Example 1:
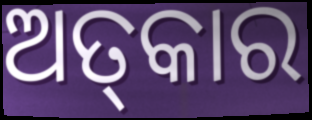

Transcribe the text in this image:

ଅତ୍‌କାର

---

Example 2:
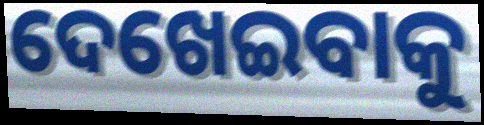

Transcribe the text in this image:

ଦେଖେଇବାକୁ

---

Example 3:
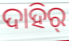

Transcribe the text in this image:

ଦାହିର୍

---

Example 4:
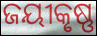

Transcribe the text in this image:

ଜୟୀକୃଷ୍ଣ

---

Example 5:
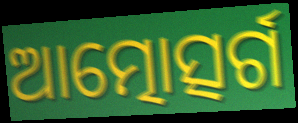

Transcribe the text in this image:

ଆତ୍ମୋତ୍ସର୍ଗ